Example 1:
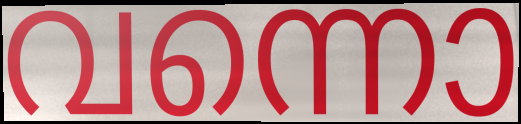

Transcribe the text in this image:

വന്നൊ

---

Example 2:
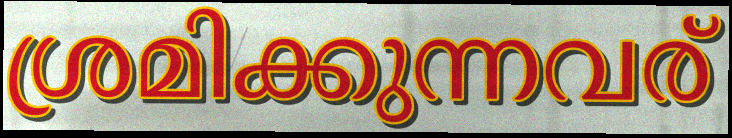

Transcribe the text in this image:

ശ്രമിക്കുന്നവര്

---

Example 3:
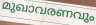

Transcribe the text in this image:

മുഖാവരണവും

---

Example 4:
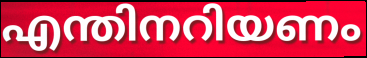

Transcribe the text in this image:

എന്തിനറിയണം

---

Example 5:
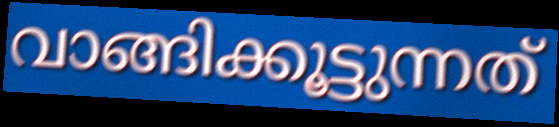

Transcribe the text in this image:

വാങ്ങിക്കൂട്ടുന്നത്